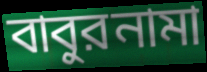
বাবুরনামা